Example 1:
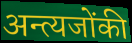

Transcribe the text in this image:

अन्त्यजोंकी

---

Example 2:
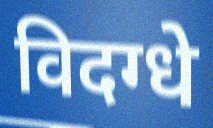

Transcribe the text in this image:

विदग्धे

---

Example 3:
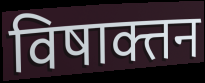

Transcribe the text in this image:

विषाक्तन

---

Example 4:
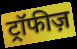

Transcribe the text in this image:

ट्रॉफीज़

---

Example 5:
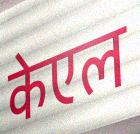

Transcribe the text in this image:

केएल